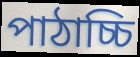
পাঠাচ্চি